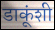
डाकूंशी